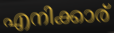
എനിക്കാര്